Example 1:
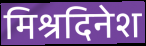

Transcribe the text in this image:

मिश्रदिनेश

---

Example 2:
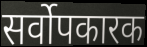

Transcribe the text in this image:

सर्वोपकारक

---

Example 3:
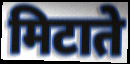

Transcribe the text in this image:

मिटाते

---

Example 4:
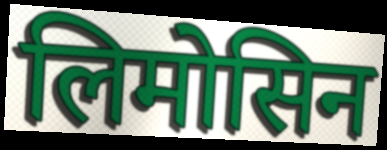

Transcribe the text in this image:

लिमोसिन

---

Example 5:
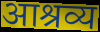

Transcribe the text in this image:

आश्रव्य